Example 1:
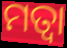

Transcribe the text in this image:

ମତ୍ୱା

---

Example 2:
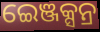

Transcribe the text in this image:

ଇେଞ୍ଜକ୍ସନ୍ର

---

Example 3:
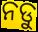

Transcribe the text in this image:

ନଡୁ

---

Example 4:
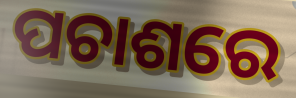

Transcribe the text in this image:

ପଚାଶରେ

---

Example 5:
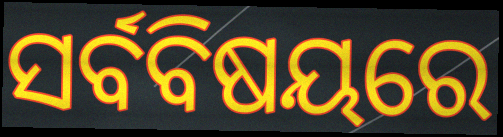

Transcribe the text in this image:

ସର୍ବବିଷୟରେ